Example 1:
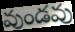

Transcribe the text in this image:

వుండవు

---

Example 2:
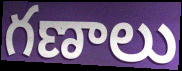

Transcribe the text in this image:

గణాలు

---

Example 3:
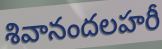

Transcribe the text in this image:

శివానందలహరీ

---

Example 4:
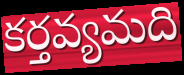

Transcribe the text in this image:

కర్తవ్యమది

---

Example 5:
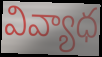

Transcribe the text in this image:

వివ్యాధ